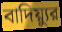
বাদিয়্যুর